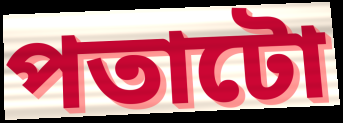
পতাটো